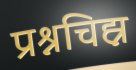
प्रश्नचिह्न